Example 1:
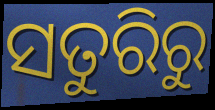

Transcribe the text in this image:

ସତୁରିରୁ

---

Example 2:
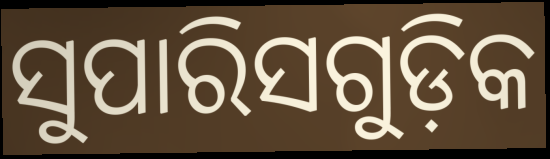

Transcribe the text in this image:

ସୁପାରିସଗୁଡ଼ିକ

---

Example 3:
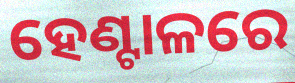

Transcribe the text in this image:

ହେଣ୍ଟାଳରେ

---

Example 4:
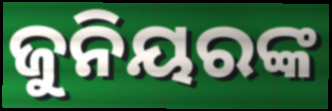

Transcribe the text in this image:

ଜୁନିୟରଙ୍କ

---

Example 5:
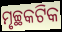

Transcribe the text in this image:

ମୃଚ୍ଛକଟିକ